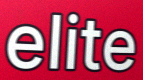
elite